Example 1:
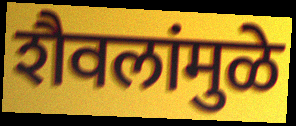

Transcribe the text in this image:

शैवलांमुळे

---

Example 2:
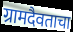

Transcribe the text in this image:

ग्रामदैवताचा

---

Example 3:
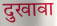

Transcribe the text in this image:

दुखावा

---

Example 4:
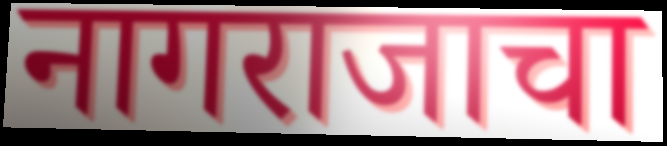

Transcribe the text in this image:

नागराजाचा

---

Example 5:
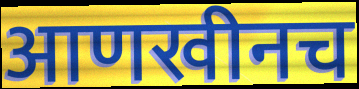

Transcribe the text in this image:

आणखीनच